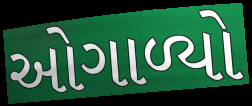
ઓગાળ્યો